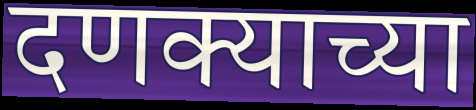
दणक्याच्या